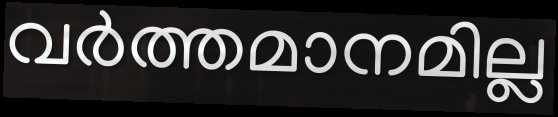
വർത്തമാനമില്ല